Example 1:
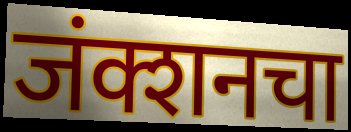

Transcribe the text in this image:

जंक्‍शनचा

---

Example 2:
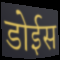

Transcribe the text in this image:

डोईस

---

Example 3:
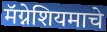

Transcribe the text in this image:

मॅग्नेशियमाचे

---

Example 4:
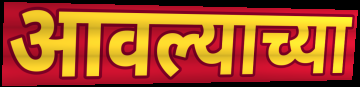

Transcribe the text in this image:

आवल्याच्या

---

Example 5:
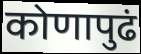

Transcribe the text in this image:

कोणापुढं